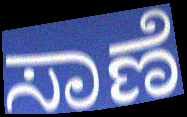
ಸಾಣೆ